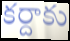
కర్దాకు